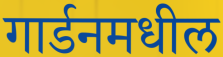
गार्डनमधील